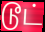
டூட்